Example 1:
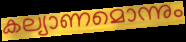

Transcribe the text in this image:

കല്യാണമൊന്നും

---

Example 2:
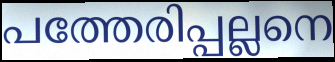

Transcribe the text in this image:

പത്തേരിപ്പല്ലനെ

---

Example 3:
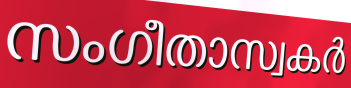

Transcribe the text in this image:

സംഗീതാസ്വകർ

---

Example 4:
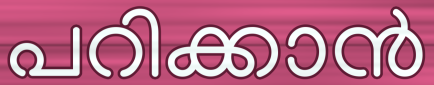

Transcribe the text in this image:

പറിക്കാൻ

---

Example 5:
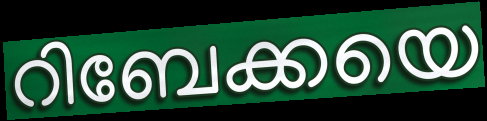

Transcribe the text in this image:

റിബേക്കയെ